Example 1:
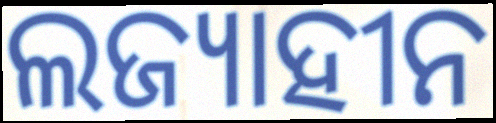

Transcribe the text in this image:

ଲଜ୍ଯାହୀନ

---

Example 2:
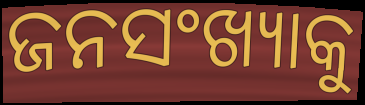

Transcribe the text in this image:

ଜନସଂଖ୍ୟାକୁ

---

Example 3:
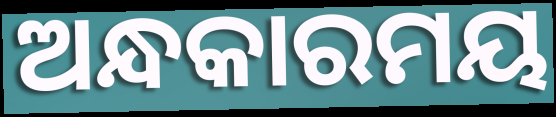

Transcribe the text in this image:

ଅନ୍ଧକାରମୟ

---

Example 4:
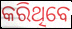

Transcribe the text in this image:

କରିଥିବେ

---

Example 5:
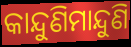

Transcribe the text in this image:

କାନ୍ଦୁଣିମାନ୍ଦୁଣି